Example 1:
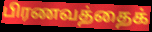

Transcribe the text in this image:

பிரணவத்தைக்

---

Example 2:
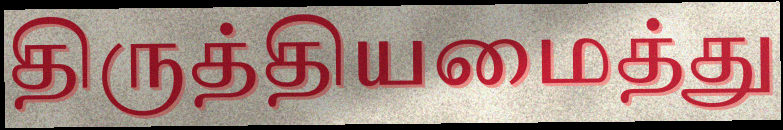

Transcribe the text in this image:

திருத்தியமைத்து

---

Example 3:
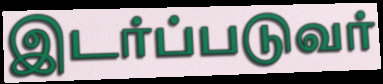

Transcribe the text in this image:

இடர்ப்படுவர்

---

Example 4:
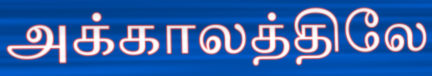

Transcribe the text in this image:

அக்காலத்திலே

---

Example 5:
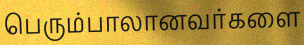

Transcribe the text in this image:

பெரும்பாலானவர்களை